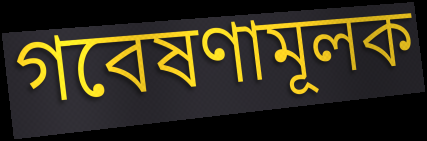
গবেষণামূলক